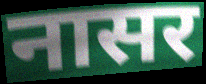
नासर